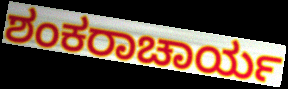
ಶಂಕರಾಚಾರ್ಯ